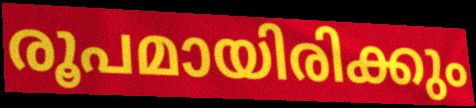
രൂപമായിരിക്കും